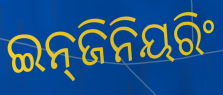
ଇନ୍‍ଜିନିୟରିଂ